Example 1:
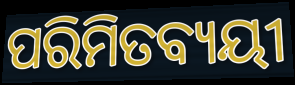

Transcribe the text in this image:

ପରିମିତବ୍ୟୟୀ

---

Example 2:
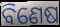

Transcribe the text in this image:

ବିଣେଷ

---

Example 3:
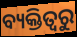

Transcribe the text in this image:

ବ୍ୟକ୍ତିତ୍ୱରୁ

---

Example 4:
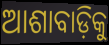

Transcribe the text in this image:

ଆଶାବାଡ଼ିକୁ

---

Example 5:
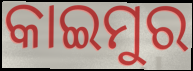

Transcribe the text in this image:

କାଇମୁର